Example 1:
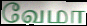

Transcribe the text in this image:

வேமா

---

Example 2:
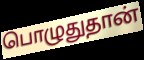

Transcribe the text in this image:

பொழுதுதான்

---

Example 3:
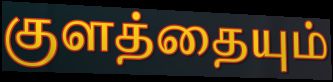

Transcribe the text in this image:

குளத்தையும்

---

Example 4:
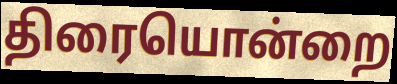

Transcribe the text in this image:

திரையொன்றை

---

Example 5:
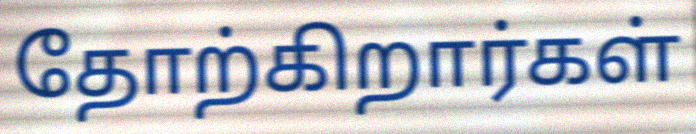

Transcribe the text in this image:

தோற்கிறார்கள்